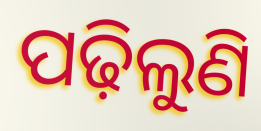
ପଢ଼ିଲୁଣି